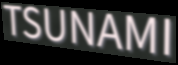
TSUNAMI